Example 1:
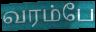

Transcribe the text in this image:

வரம்பே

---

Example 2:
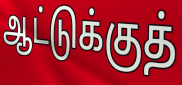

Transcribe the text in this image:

ஆட்டுக்குத்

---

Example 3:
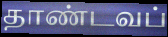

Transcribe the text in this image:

தாண்டவப்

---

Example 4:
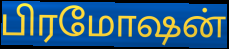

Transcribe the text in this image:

பிரமோஷன்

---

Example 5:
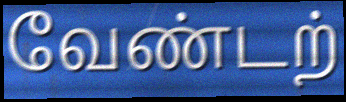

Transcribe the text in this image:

வேண்டற்